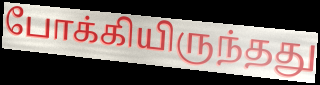
போக்கியிருந்தது